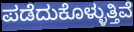
ಪಡೆದುಕೊಳ್ಳುತ್ತಿವೆ